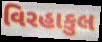
વિરહાકુલ